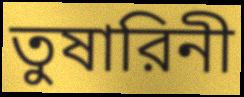
তুষারিনী